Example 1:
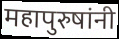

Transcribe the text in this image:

महापुरुषांनी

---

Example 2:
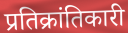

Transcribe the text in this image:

प्रतिक्रांतिकारी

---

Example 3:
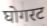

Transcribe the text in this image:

घोगरट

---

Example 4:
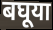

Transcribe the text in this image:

बघूया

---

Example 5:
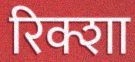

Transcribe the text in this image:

रिक्शा